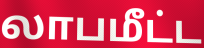
லாபமீட்ட